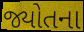
જ્યોતના